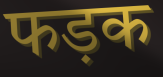
फड़क